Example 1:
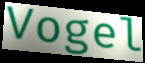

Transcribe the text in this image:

Vogel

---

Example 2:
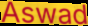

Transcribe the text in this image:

Aswad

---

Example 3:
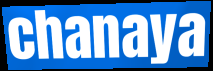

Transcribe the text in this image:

chanaya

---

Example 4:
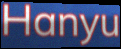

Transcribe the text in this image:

Hanyu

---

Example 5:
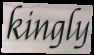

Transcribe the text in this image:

kingly